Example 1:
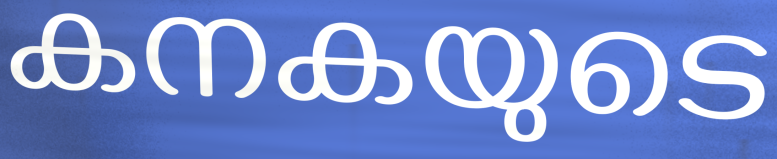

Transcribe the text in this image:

കനകയുടെ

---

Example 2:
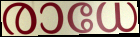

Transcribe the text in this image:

രാധേ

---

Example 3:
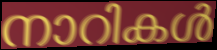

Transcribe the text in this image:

നാറികൾ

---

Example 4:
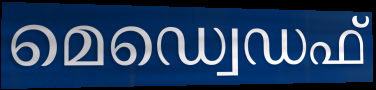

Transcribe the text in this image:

മെഡ്വെഡഫ്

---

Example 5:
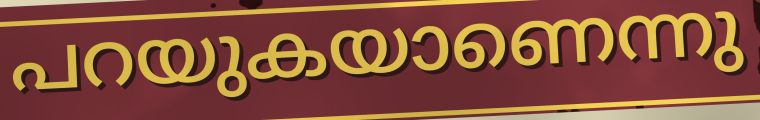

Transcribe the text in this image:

പറയുകയാണെന്നു